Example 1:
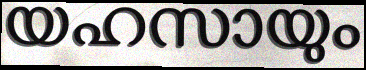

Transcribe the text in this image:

യഹസായും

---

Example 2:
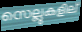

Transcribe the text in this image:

സെല്ലുകളില്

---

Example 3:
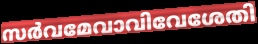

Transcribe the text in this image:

സർവമേവാവിവേശേതി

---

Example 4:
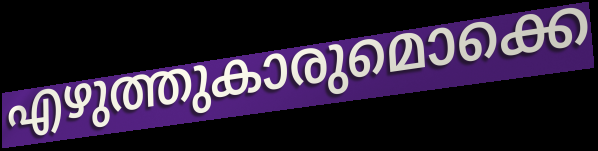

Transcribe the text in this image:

എഴുത്തുകാരുമൊക്കെ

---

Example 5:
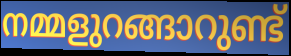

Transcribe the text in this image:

നമ്മളുറങ്ങാറുണ്ട്